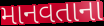
માનવતાના